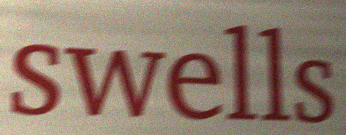
swells